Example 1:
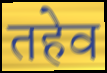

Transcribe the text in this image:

तहेव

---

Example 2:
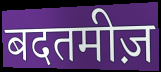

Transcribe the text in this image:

बदतमीज़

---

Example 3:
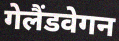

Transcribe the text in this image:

गेलैंडवेगन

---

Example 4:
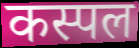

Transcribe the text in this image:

कस्पल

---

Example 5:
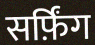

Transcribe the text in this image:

सर्फ़िंग